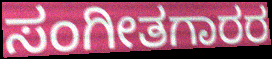
ಸಂಗೀತಗಾರರ